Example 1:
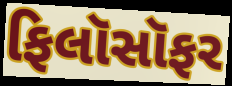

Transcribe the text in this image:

ફિલૉસૉફર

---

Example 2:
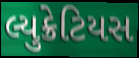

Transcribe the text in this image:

લ્યુક્રેટિયસ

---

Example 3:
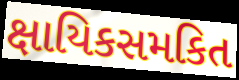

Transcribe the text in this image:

ક્ષાયિકસમકિત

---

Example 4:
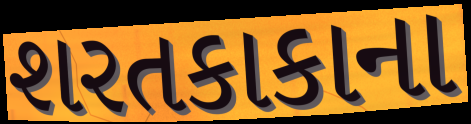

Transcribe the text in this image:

શરતકાકાના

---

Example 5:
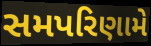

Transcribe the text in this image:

સમપરિણામે